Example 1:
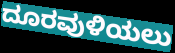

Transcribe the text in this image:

ದೂರವುಳಿಯಲು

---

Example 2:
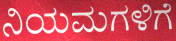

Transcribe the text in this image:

ನಿಯಮಗಳಿಗೆ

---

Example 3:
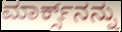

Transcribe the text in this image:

ಮಾರ್ಕ್ಸ್‌ನನ್ನು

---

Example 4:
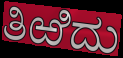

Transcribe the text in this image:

ತಿಱಿದು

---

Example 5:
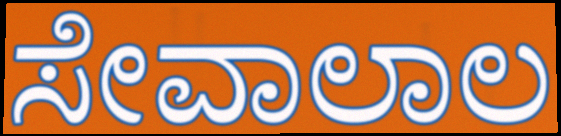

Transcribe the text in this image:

ಸೇವಾಲಾಲ